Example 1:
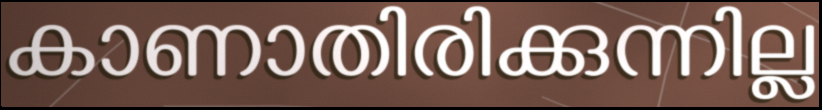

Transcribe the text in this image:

കാണാതിരിക്കുന്നില്ല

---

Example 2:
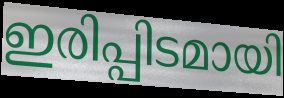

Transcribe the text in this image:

ഇരിപ്പിടമായി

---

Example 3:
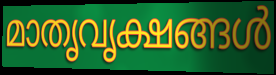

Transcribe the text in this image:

മാതൃവൃക്ഷങ്ങൾ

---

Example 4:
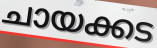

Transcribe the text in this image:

ചായക്കട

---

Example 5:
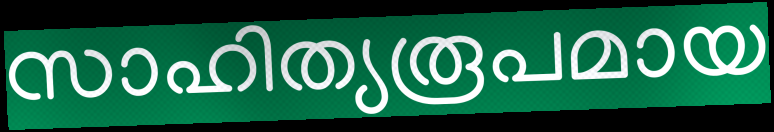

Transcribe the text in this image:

സാഹിത്യരൂപമായ